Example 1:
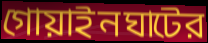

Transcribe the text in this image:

গোয়াইনঘাটের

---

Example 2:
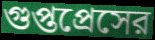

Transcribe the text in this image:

গুপ্তপ্রেসের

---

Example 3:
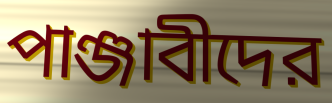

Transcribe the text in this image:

পাঞ্জাবীদের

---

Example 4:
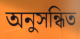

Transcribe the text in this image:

অনুসন্ধিত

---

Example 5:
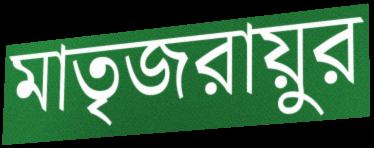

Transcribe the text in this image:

মাতৃজরায়ুর